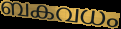
ബകവധം